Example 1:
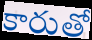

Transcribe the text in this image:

కారుతో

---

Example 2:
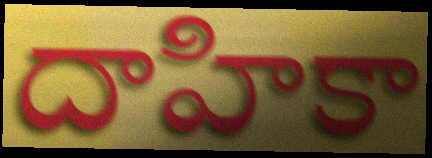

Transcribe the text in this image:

దాహికా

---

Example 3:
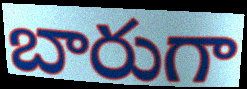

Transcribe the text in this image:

బారుగా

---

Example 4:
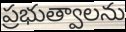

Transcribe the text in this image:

ప్రభుత్వాలను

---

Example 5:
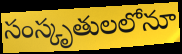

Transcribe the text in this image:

సంస్కృతులలోనూ